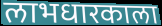
लाभधारकाला